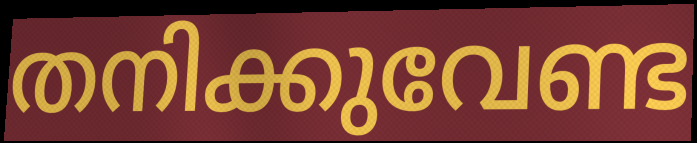
തനിക്കുവേണ്ട